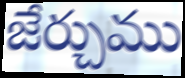
జేర్చుము